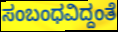
ಸಂಬಂಧವಿದ್ದಂತೆ